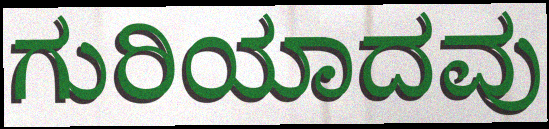
ಗುರಿಯಾದವು